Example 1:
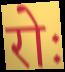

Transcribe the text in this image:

रोः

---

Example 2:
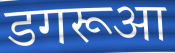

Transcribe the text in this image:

डगरूआ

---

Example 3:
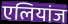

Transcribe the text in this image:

एलियांज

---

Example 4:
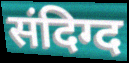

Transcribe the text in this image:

संदिग्द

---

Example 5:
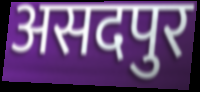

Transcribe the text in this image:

असदपुर